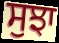
ਸੁਝਾ